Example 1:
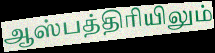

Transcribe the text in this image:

ஆஸ்பத்திரியிலும்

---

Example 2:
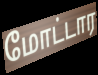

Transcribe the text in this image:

மோட்டார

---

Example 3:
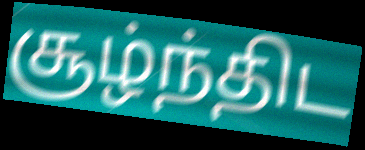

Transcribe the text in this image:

சூழ்ந்திட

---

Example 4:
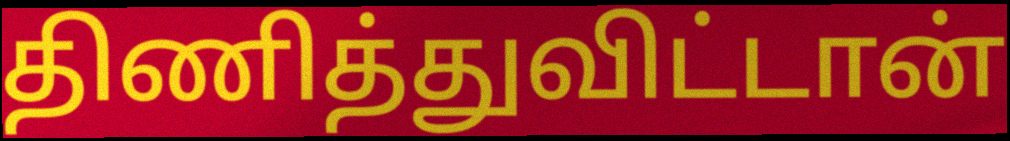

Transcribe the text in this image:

திணித்துவிட்டான்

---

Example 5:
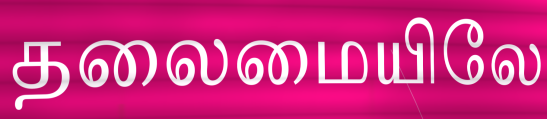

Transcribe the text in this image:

தலைமையிலே